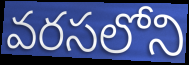
వరసలోని